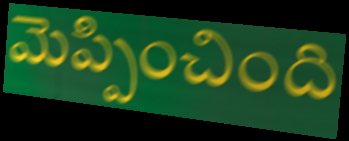
మెప్పించింది